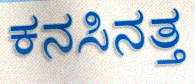
ಕನಸಿನತ್ತ